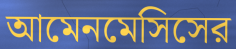
আমেনমেসিসের